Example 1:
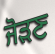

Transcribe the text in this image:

ਜੋੜਣ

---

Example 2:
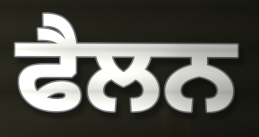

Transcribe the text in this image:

ਫੈਲਨ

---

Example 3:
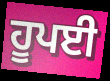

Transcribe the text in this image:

ਹੂਪਈ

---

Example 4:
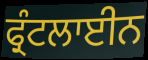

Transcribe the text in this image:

ਫ੍ਰੰਟਲਾਈਨ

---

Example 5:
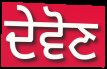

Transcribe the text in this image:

ਦੇਵੋਣ